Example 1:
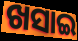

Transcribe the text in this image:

ଖସାଇ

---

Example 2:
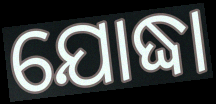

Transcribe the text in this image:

ଯୋଦ୍ଧା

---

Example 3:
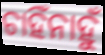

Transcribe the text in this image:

ଚାହିଁନାହୁଁ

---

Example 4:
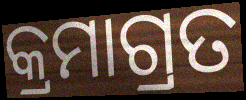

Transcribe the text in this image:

କ୍ରମାଗ୍ରତ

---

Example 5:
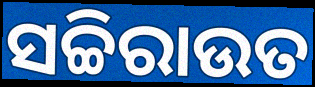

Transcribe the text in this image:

ସଚ୍ଚିରାଉତ